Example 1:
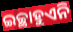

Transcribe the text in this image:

ଇଚ୍ଛାହୁଏନି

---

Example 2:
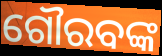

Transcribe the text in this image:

ଗୌରବଙ୍କ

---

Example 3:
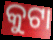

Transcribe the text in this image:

କୁଟା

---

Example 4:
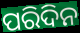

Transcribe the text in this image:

ପରିଦିନ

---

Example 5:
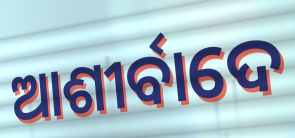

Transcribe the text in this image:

ଆଶୀର୍ବାଦେ